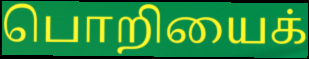
பொறியைக்